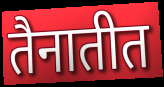
तैनातीत